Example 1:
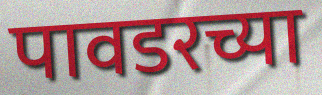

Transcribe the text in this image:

पावडरच्या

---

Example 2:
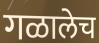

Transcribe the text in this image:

गळालेच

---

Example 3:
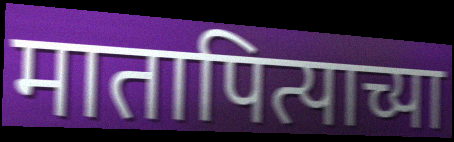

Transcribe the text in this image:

मातापित्याच्या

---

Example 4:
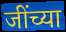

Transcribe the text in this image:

जींच्या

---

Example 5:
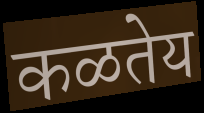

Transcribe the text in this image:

कळतेय